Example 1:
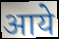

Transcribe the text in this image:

आये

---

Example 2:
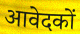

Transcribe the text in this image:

आवेदकों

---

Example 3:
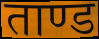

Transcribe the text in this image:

ताण्ड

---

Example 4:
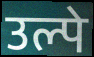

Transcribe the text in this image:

उल्पे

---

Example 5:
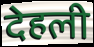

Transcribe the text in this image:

देहली